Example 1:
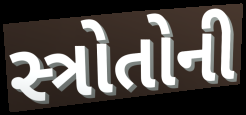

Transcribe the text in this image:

સ્ત્રોતોની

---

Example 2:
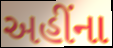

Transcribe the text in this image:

અહીંના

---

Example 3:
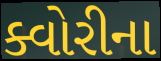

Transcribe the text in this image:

ક્વોરીના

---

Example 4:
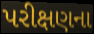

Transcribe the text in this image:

પરીક્ષણના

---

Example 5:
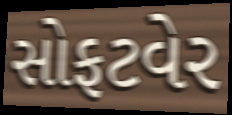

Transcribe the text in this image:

સોફટવેર